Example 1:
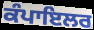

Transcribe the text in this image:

ਕੰਪਾਇਲਰ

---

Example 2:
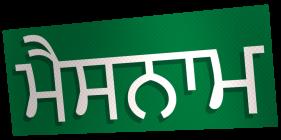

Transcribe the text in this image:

ਮੈਸਨਾਮ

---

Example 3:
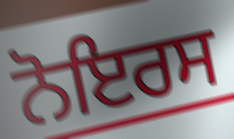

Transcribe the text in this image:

ਨੋਇਰਸ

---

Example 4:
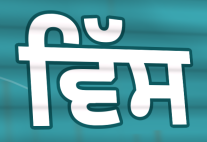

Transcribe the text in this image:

ਵਿੱਸ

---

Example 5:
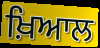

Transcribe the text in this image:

ਖ਼ਿਆਲ